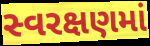
સ્વરક્ષણમાં